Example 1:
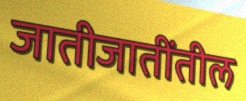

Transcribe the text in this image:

जातीजातींतील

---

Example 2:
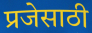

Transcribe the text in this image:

प्रजेसाठी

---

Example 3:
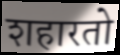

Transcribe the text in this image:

शहारतो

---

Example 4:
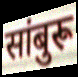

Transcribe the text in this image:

सांबुरू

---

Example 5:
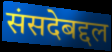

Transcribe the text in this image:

संसदेबद्दल